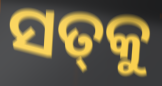
ସତ୍‌କୁ